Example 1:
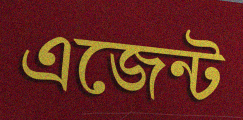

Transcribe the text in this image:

এজেন্ট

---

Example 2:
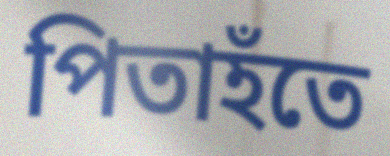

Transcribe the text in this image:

পিতাহঁতে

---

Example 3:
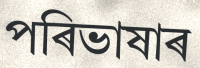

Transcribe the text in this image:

পৰিভাষাৰ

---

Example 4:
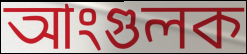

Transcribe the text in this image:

আংগুলক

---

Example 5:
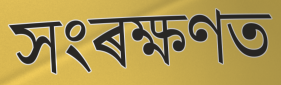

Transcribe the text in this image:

সংৰক্ষণত